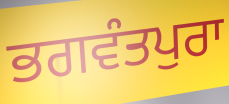
ਭਗਵੰਤਪੁਰਾ